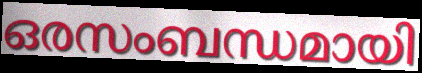
ഒരസംബന്ധമായി